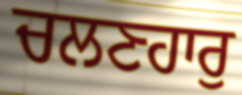
ਚਲਣਹਾਰੁ